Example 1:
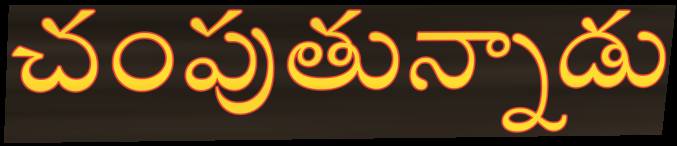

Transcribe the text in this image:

చంపుతున్నాడు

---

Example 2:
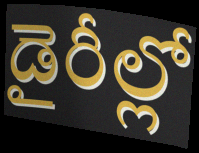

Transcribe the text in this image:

డైరీల్లో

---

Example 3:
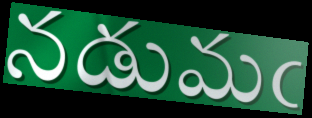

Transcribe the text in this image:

నడుమఁ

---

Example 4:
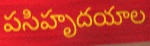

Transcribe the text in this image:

పసిహృదయాల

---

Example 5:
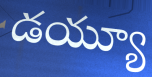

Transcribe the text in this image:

డయ్యూ